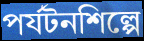
পর্যটনশিল্পে